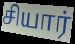
சியார்